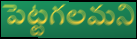
పెట్టగలమని